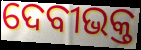
ଦେବୀଭକ୍ତ